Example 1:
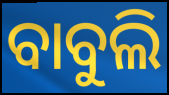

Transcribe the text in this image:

ବାବୁଲି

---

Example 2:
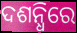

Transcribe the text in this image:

ଦଶନ୍ଧିରେ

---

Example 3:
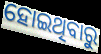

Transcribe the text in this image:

ହୋଇଥିବାରୁ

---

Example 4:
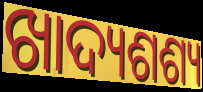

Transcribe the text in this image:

ଖାଦ୍ୟଶଶ୍ୟ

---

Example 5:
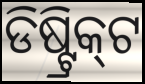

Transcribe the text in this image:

ଡିଷ୍ଟ୍ରିକ୍‌ଟ